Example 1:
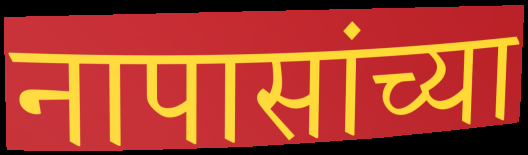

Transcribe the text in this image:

नापासांच्या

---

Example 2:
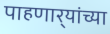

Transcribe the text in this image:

पाहणार्‍यांच्या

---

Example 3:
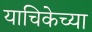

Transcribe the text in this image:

याचिकेच्या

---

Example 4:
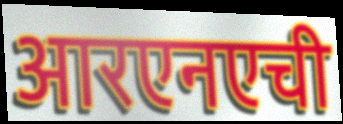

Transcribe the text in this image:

आरएनएची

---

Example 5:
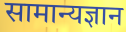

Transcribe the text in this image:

सामान्यज्ञान